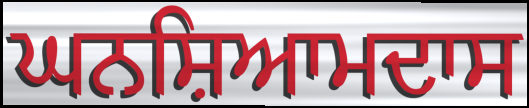
ਘਨਸ਼ਿਆਮਦਾਸ